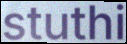
stuthi